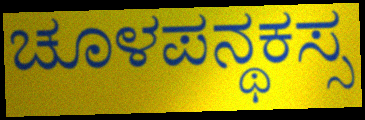
ಚೂಳಪನ್ಥಕಸ್ಸ